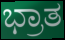
ಭ್ರಾತ